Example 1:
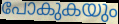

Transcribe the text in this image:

പോകുകയും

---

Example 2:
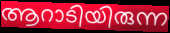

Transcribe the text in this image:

ആറാടിയിരുന്ന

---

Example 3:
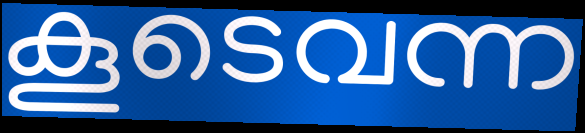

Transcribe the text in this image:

കൂടെവന്ന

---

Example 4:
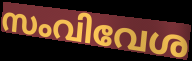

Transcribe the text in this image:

സംവിവേശ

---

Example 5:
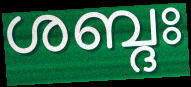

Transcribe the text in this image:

ശബ്ദഃ